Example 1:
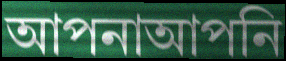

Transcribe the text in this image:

আপনাআপনি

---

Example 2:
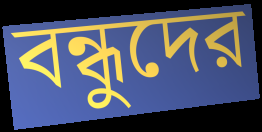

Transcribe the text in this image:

বন্ধুদের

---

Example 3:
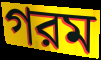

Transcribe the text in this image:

গরম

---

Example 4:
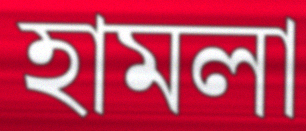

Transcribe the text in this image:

হামলা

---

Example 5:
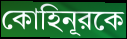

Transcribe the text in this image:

কোহিনূরকে